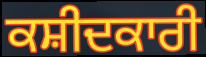
ਕਸ਼ੀਦਕਾਰੀ